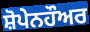
ਸ਼ੋਪੇਨਹੌਅਰ